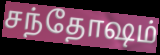
சந்தோஷம்